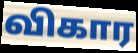
விகார